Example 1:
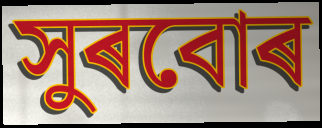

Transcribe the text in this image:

সুৰবোৰ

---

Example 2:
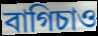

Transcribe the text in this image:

বাগিচাও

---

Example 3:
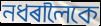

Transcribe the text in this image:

নধৰালৈকে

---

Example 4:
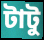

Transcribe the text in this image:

টাটু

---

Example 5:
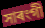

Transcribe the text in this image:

সাৰংগী